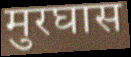
मुरघास